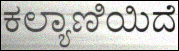
ಕಲ್ಯಾಣಿಯಿದೆ